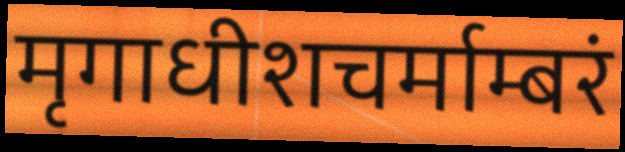
मृगाधीशचर्माम्बरं